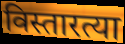
विस्तारत्या